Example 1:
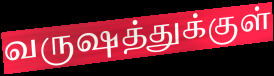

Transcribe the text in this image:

வருஷத்துக்குள்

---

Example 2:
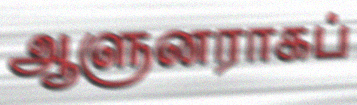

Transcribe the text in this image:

ஆளுனராகப்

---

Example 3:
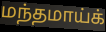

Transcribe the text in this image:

மந்தமாய்க்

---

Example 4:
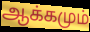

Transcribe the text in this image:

ஆக்கமும்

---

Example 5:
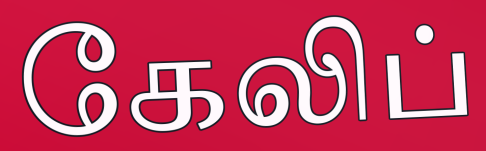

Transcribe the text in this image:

கேலிப்